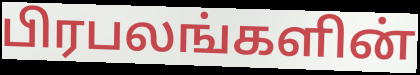
பிரபலங்களின்